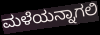
ಮಳೆಯನ್ನಾಗಲಿ